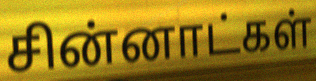
சின்னாட்கள்